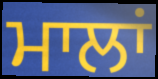
ਮਾਲਾਂ